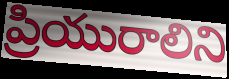
ప్రియురాలిని